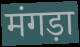
मंगड़ा